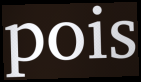
pois